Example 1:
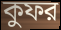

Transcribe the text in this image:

কুফর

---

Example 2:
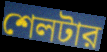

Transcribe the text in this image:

শেলটার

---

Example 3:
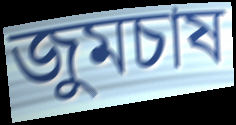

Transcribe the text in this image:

জুমচাষ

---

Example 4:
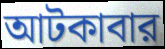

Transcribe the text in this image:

আটকাবার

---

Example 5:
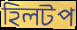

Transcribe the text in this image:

হিলটপ